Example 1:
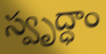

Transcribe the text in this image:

స్వృద్ధాం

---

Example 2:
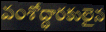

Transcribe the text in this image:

వంశోద్ధారకులైన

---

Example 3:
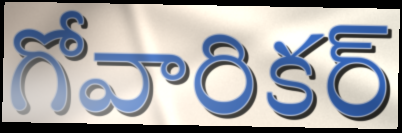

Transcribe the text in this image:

గోవారికర్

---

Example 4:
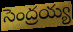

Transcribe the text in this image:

సెంద్రయ్య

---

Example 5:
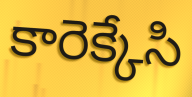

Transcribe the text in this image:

కారెక్కేసి